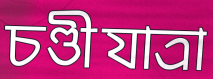
চণ্ডীযাত্রা